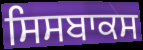
ਸਿਸਬਾਕਸ